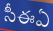
సీఈఏ